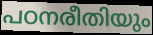
പഠനരീതിയും